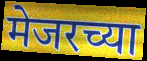
मेजरच्या